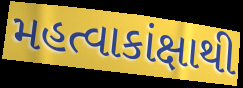
મહત્વાકાંક્ષાથી